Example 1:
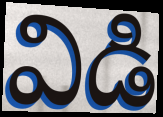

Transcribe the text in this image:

విడి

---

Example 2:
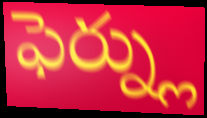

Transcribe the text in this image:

ఫెర్న్లు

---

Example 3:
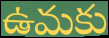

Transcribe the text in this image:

ఉమకు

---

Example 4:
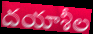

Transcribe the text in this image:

దయాశీల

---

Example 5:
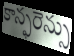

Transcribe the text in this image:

కాన్ఫరెన్సు